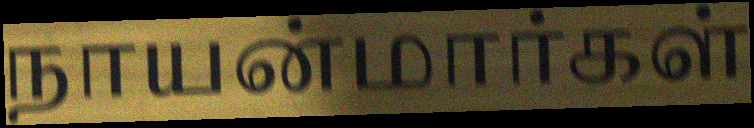
நாயன்மார்கள்